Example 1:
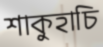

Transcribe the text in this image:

শাকুহাচি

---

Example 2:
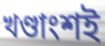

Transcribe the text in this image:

খণ্ডাংশই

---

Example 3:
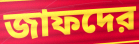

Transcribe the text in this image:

জাফদের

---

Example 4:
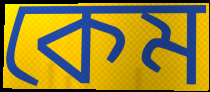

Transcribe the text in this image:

কেম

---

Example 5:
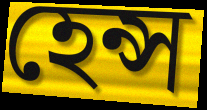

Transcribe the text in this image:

হেন্স